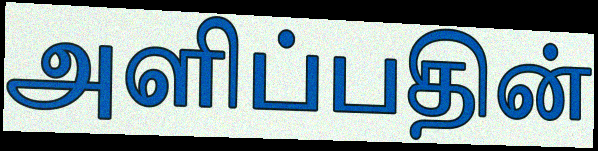
அளிப்பதின்